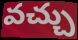
వచ్చు